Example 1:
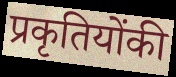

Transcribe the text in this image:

प्रकृतियोंकी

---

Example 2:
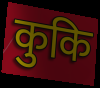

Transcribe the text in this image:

कुकि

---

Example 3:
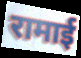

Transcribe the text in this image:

रामाई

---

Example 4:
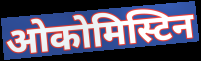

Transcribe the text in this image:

ओकोमिस्टिन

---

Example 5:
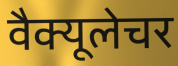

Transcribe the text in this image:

वैक्यूलेचर